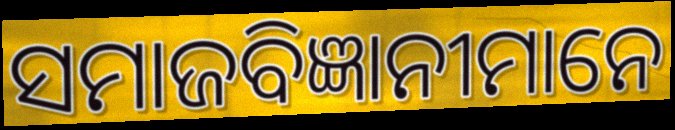
ସମାଜବିଜ୍ଞାନୀମାନେ